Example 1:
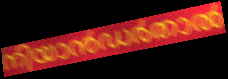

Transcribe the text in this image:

നിയാൻഡർതാൽ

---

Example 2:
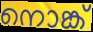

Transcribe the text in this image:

നൊങ്ക്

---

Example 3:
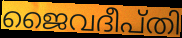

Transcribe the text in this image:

ജൈവദീപ്തി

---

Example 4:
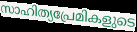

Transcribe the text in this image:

സാഹിത്യപ്രേമികളുടെ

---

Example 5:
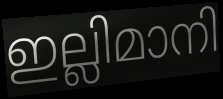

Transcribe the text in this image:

ഇല്ലിമാനി